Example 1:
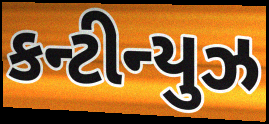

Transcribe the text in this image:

કન્ટીન્યુઝ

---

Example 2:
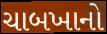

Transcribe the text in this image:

ચાબખાનો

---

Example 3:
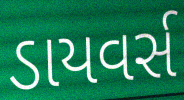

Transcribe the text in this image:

ડાયવર્સ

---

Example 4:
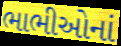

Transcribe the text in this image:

ભાભીઓનાં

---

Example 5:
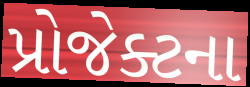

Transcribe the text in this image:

પ્રોજેક્ટના